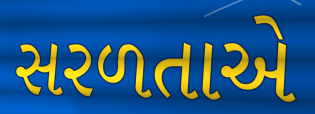
સરળતાએ